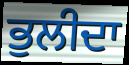
ਭੁਲੀਦਾ